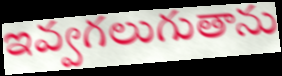
ఇవ్వగలుగుతాను